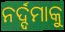
ନର୍ଦ୍ଦମାକୁ